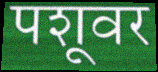
पशूवर